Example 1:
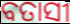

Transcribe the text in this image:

ବତାସୀ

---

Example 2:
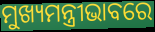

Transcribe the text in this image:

ମୁଖ୍ୟମନ୍ତ୍ରୀଭାବରେ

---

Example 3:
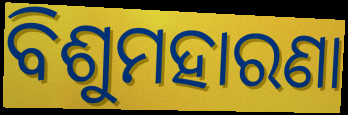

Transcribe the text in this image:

ବିଶୁମହାରଣା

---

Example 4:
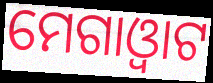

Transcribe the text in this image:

ମେଗାଓ୍ଵାଟ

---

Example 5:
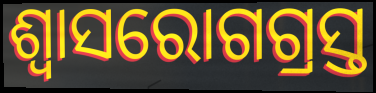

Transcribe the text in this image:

ଶ୍ୱାସରୋଗଗ୍ରସ୍ତ